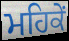
ਮਹਿਕੇਂ